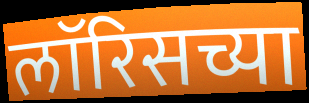
लॉरिसच्या